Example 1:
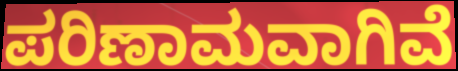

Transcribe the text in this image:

ಪರಿಣಾಮವಾಗಿವೆ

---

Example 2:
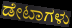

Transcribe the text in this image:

ಡೇಟಾಗಳು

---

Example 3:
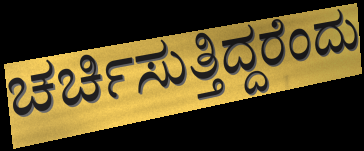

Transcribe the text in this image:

ಚರ್ಚಿಸುತ್ತಿದ್ದರೆಂದು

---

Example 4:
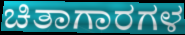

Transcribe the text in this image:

ಚಿತಾಗಾರಗಳ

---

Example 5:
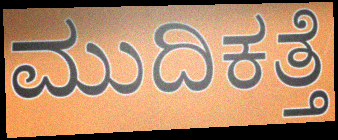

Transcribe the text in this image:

ಮುದಿಕತ್ತೆ